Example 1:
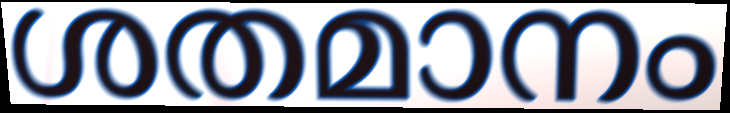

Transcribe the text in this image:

ശതമാനം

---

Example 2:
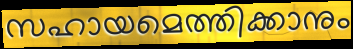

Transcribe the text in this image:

സഹായമെത്തിക്കാനും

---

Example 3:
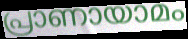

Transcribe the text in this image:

പ്രാണായാമം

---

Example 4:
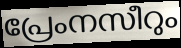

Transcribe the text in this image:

പ്രേംനസീറും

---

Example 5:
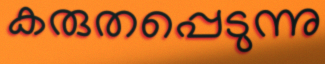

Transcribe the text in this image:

കരുതപ്പെടുന്നു